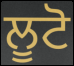
ਲੂਟੋ